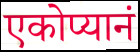
एकोप्यानं